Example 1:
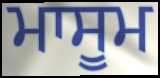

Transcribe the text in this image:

ਮਾਸੂਮ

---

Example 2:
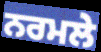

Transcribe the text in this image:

ਨਰਮਲੇ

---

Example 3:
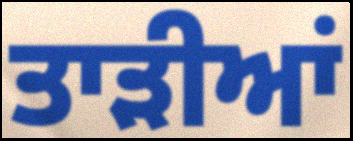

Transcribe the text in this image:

ਤਾੜੀਆਂ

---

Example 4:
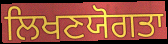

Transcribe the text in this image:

ਲਿਖਣਯੋਗਤਾ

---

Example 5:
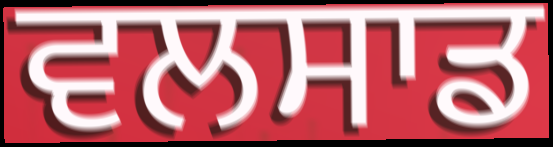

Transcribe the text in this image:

ਵਲਸਾਡ